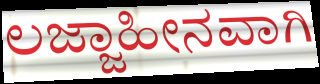
ಲಜ್ಜಾಹೀನವಾಗಿ